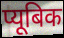
प्यूबिक